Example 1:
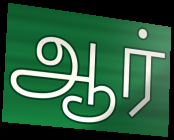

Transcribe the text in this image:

ஆர்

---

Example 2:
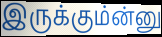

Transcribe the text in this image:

இருக்கும்ன்னு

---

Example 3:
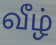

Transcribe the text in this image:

வீழ்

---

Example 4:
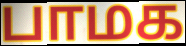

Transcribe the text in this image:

பாமக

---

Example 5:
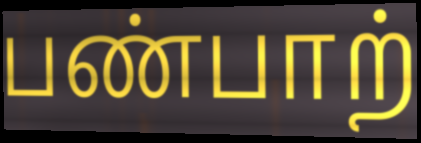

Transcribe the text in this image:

பண்பாற்